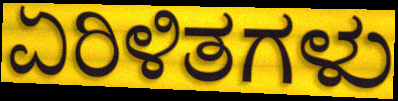
ಏರಿಳಿತಗಳು